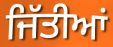
ਜਿੱਤੀਆਂ